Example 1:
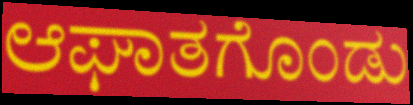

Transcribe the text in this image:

ಆಘಾತಗೊಂಡು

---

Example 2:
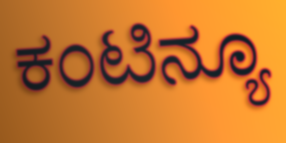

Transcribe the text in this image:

ಕಂಟಿನ್ಯೂ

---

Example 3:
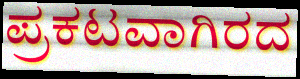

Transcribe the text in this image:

ಪ್ರಕಟವಾಗಿರದ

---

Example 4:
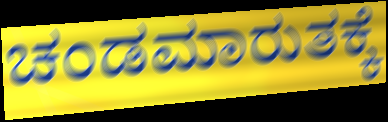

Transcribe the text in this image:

ಚಂಡಮಾರುತಕ್ಕೆ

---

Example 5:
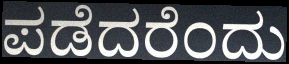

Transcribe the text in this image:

ಪಡೆದರೆಂದು